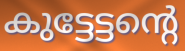
കുട്ടേട്ടന്റെ